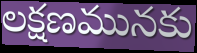
లక్షణమునకు